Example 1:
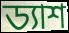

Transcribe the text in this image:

ড্যাশ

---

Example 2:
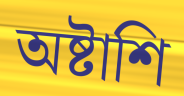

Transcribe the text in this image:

অষ্টাশি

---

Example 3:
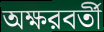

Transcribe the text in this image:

অক্ষরবর্তী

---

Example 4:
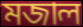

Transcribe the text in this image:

মজাল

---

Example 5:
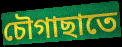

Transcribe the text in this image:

চৌগাছাতে